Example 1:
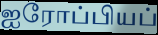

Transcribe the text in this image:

ஐரோப்பியப்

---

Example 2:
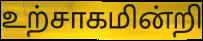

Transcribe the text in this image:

உற்சாகமின்றி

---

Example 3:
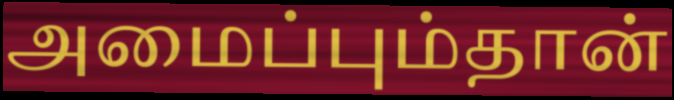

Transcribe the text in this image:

அமைப்பும்தான்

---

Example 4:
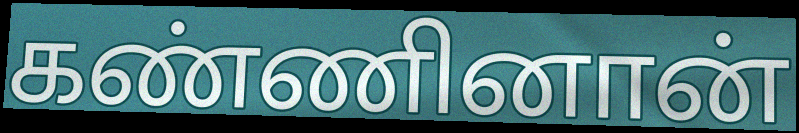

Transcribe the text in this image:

கண்ணினான்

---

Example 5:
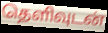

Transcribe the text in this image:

தெளிவுடன்